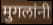
मुगलांनी